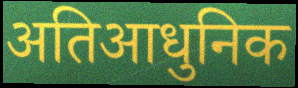
अतिआधुनिक